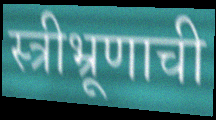
स्त्रीभ्रूणाची